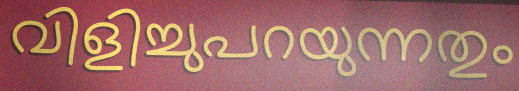
വിളിച്ചുപറയുന്നതും